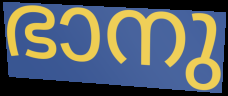
ഭാനു